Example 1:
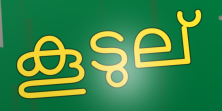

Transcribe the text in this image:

കൂടുല്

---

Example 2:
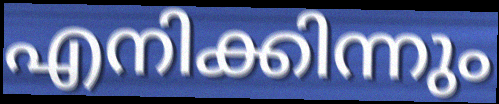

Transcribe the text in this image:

എനിക്കിന്നും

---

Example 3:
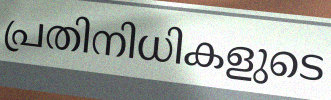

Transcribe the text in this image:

പ്രതിനിധികളുടെ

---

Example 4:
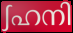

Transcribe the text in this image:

ഽഹനി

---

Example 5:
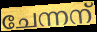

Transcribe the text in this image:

ചേന്നന്